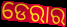
ଡେରାର